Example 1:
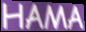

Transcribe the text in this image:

HAMA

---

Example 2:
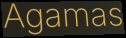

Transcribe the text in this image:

Agamas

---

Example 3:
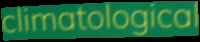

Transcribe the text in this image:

climatological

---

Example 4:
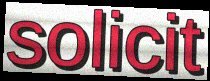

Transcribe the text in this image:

solicit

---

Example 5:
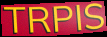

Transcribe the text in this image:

TRPIS